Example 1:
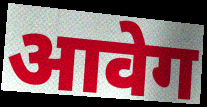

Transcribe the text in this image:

आवेग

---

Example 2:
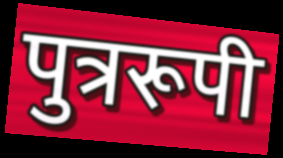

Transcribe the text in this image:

पुत्ररूपी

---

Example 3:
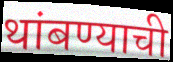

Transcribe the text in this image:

थांबण्याची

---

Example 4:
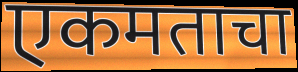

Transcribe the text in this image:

एकमताचा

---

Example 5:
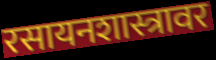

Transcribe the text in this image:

रसायनशास्त्रावर